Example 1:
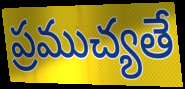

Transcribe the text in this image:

ప్రముచ్యతే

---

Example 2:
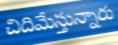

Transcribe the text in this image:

చిదిమేస్తున్నారు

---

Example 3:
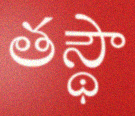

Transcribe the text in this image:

తస్థౌ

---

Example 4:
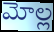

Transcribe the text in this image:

మోల్ల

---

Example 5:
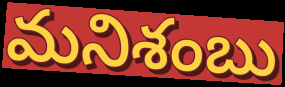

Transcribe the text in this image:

మనిశంబు